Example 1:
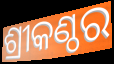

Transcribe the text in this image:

ଶ୍ରୀକଣ୍ଠର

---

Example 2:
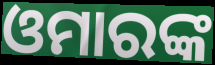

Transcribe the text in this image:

ଓମାରଙ୍କ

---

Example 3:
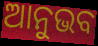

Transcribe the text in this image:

ଆନୁଭବ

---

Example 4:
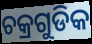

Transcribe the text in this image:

ଚକ୍ରଗୁଡିକ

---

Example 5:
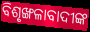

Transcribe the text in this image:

ବିଶୃଙ୍ଖଳାବାଦୀଙ୍କ